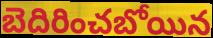
బెదిరించబోయిన